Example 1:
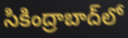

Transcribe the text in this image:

సికింద్రాబాద్‌లో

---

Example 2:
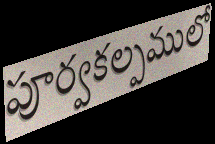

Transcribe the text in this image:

పూర్వకల్పములో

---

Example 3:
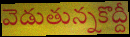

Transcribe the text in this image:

వెడుతున్నకొద్దీ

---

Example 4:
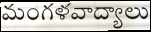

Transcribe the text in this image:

మంగళవాద్యాలు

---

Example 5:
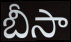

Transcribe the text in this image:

బీసా